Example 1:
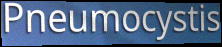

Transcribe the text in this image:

Pneumocystis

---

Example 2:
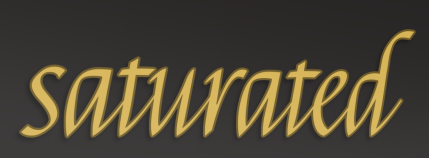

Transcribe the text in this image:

saturated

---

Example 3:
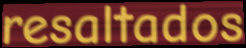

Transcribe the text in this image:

resaltados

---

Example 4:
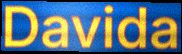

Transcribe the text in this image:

Davida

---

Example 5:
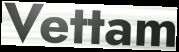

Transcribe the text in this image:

Vettam